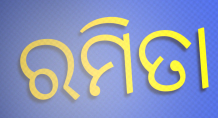
ରମିତା